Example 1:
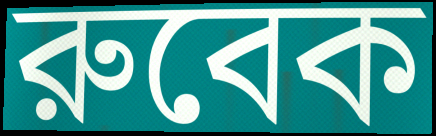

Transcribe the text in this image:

রুবেক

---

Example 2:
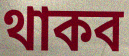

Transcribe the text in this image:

থাকব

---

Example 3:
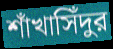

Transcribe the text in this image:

শাঁখাসিঁদুর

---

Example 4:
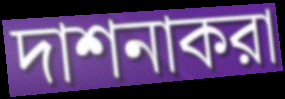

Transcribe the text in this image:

দাশনাকরা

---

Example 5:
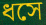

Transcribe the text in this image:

ধসে